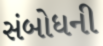
સંબોધની